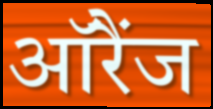
ऑरैंज